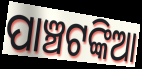
ପାଞ୍ଚଟଙ୍କିଆ